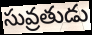
సువ్రతుడు